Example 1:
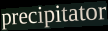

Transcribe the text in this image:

precipitator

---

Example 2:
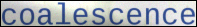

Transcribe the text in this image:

coalescence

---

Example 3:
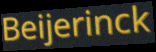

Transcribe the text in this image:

Beijerinck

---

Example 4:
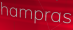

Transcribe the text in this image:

hampras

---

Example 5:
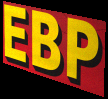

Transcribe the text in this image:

EBP